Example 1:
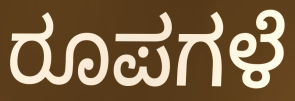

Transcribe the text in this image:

ರೂಪಗಳೆ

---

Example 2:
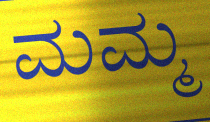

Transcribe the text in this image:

ಮಮ್ಮ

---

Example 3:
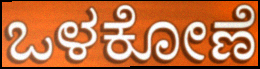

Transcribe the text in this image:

ಒಳಕೋಣೆ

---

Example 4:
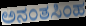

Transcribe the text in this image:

ಅನಂತಸಿಂಹ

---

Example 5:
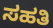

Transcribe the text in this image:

ಸಹತಿ